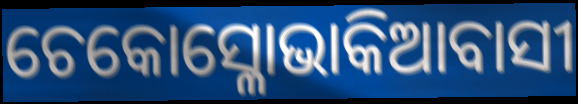
ଚେକୋସ୍ଳୋଭାକିଆବାସୀ